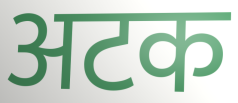
अटक